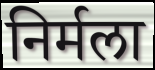
निर्मला